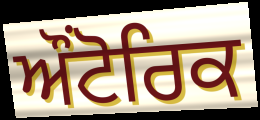
ਔਂਟੋਰਿਕ